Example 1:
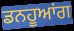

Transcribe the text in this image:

ਡਨਹੂਆਂਗ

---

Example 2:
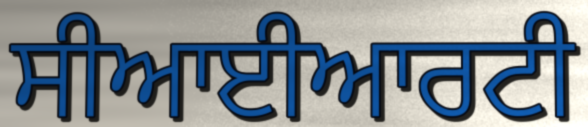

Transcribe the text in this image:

ਸੀਆਈਆਰਟੀ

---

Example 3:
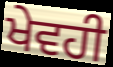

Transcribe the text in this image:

ਖੇਵਹੀ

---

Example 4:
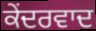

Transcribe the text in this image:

ਕੇਂਦਰਵਾਦ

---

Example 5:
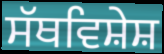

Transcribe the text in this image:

ਸੱਥਵਿਸ਼ੇਸ਼